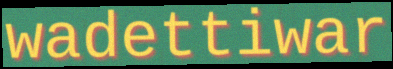
wadettiwar